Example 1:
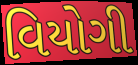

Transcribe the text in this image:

વિયોગી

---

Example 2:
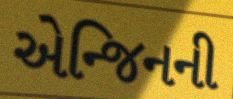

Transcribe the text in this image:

એન્જિનની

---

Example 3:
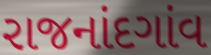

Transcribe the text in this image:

રાજનાંદગાંવ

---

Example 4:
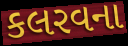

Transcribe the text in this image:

કલરવના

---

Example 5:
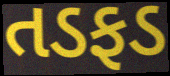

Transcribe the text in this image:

તડફડ